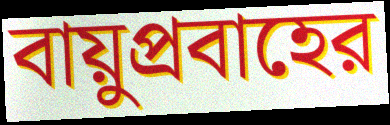
বায়ুপ্রবাহের